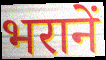
भरानें